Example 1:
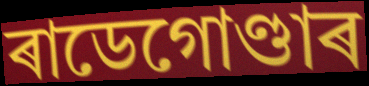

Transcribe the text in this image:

ৰাডেগোণ্ডাৰ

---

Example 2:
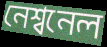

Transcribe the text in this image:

নেশ্বনেল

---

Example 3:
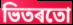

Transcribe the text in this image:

ভিতৰতো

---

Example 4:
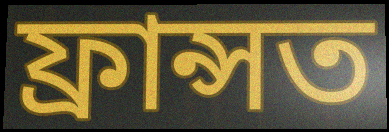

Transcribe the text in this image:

ফ্ৰান্সত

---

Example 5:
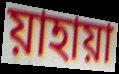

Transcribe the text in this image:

য়াহায়া